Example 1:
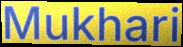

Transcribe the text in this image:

Mukhari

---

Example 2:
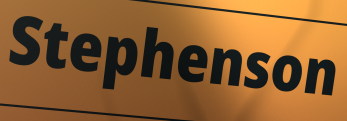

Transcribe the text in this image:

Stephenson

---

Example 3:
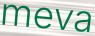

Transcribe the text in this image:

meva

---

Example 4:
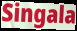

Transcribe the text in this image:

Singala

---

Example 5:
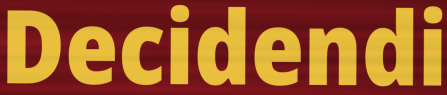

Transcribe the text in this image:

Decidendi